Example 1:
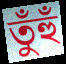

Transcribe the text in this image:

তুঁহুঁ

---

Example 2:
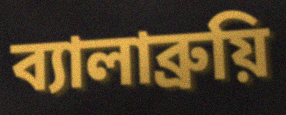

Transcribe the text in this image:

ব্যালাব্রুয়ি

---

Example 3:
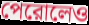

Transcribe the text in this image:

পেরোলেও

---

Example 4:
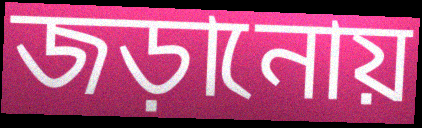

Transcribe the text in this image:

জড়ানোয়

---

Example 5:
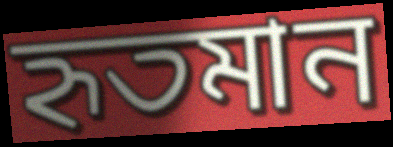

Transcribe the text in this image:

হৃতমান